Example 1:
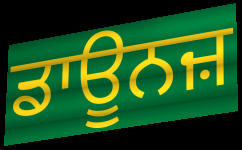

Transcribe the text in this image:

ਡਾਊਨਜ਼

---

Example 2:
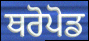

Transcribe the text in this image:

ਥਰੋਪੋਡ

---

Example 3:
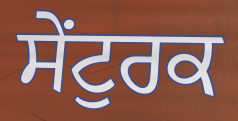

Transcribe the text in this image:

ਸੇਂਟੁਰਕ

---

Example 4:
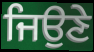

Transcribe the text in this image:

ਜਿਉਣੇ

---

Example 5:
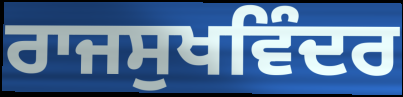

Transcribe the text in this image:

ਰਾਜਸੁਖਵਿੰਦਰ